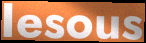
Iesous